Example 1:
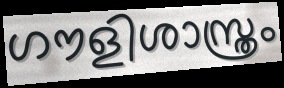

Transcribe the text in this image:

ഗൗളിശാസ്ത്രം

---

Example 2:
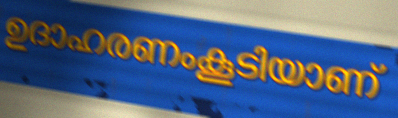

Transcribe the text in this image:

ഉദാഹരണംകൂടിയാണ്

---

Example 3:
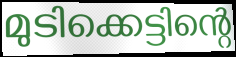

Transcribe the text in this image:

മുടിക്കെട്ടിന്റെ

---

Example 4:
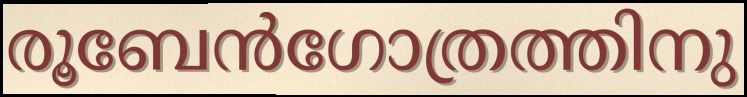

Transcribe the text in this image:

രൂബേൻഗോത്രത്തിനു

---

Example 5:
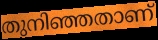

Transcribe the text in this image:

തുനിഞ്ഞതാണ്